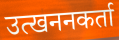
उत्खननकर्ता